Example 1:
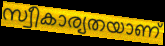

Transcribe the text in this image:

സ്വീകാര്യതയാണ്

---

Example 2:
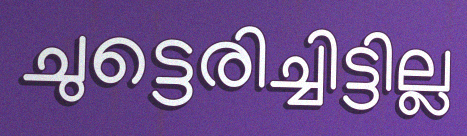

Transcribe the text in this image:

ചുട്ടെരിച്ചിട്ടില്ല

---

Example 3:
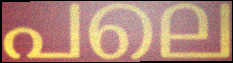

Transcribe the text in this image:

പലെ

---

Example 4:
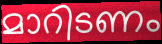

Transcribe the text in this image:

മാറിടണം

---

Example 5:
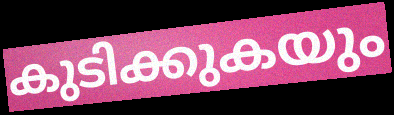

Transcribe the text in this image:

കുടിക്കുകയും